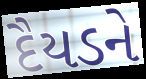
દૈયડને